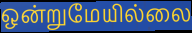
ஒன்றுமேயில்லை